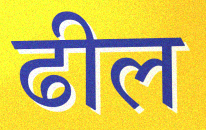
ढील